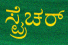
ಸ್ಟ್ರೆಚರ್